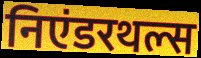
निएंडरथल्स